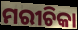
ମରୀଚିକା